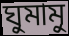
ঘুমামু